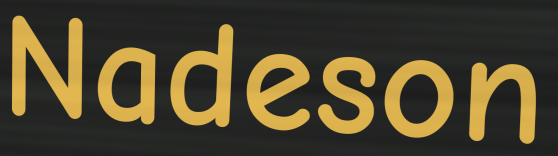
Nadeson